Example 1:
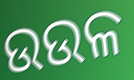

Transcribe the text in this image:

ଉଉଳ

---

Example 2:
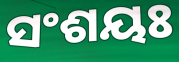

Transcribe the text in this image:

ସଂଶୟଃ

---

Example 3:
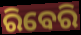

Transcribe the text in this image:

ରିବେରି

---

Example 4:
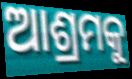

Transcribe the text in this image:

ଆଶ୍ରମକୁ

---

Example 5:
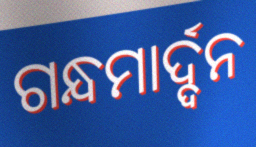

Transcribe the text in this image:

ଗନ୍ଧମାର୍ଦ୍ଦନ